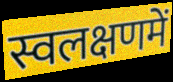
स्वलक्षणमें